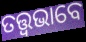
ତତ୍ତ୍ଵଭାବେ